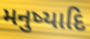
મનુષ્યાદિ